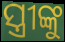
ସ୍ତ୍ରୀଙ୍କୁ